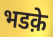
भडक़े